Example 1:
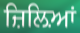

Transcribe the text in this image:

ਜ਼ਿਲ਼ਿਆਂ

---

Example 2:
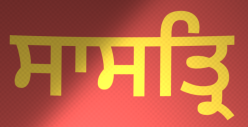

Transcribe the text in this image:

ਸਾਸਤ੍ਰਿ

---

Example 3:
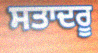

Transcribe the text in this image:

ਸਤਾਦਰੂ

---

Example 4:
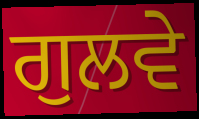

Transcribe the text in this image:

ਗੁਲਵੇ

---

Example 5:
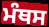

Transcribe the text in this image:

ਮੰਥਸ